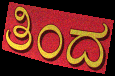
ತಿಂದ